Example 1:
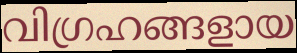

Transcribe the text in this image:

വിഗ്രഹങ്ങളായ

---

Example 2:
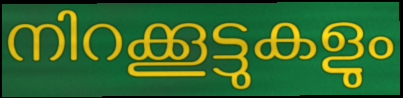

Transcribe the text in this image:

നിറക്കൂട്ടുകളും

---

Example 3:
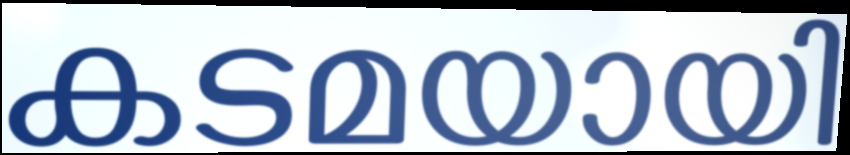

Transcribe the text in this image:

കടമയായി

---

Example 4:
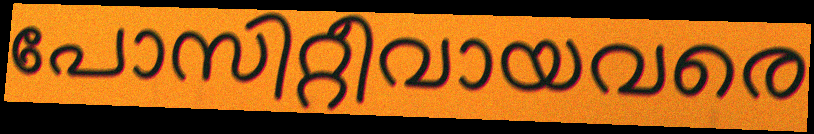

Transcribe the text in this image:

പോസിറ്റീവായവരെ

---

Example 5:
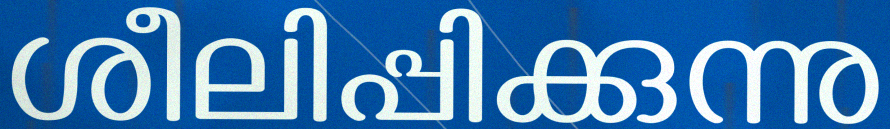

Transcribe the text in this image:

ശീലിപ്പിക്കുന്നു